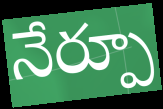
నేర్పూ